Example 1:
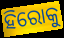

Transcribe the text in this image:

ହିରୋକୁ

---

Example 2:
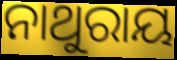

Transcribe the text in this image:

ନାଥୁରାୟ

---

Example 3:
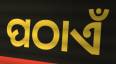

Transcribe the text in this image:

ପଠାଏଁ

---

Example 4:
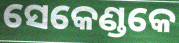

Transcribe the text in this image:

ସେକେଣ୍ଡକେ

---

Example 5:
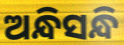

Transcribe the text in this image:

ଅନ୍ଧିସନ୍ଧି